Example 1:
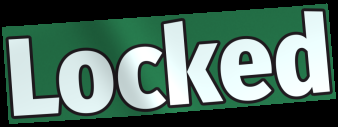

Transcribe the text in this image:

Locked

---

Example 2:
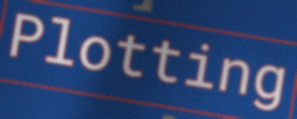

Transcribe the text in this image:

Plotting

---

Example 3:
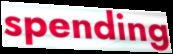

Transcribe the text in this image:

spending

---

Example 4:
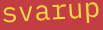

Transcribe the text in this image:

svarup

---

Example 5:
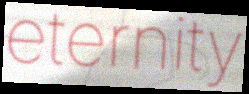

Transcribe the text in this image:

eternity